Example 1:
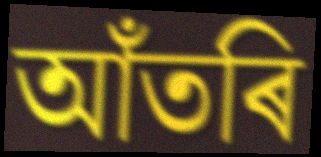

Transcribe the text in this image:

আঁতৰি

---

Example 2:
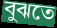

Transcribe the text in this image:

বুঝতে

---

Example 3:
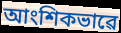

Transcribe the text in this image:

আংশিকভাৱে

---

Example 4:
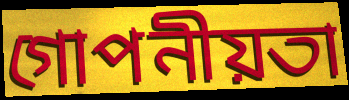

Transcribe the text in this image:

গোপনীয়তা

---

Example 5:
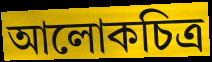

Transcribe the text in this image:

আলোকচিত্ৰ